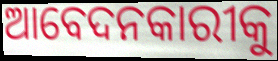
ଆବେଦନକାରୀକୁ